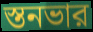
স্তনভার